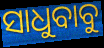
ସାଧୁବାବୁ